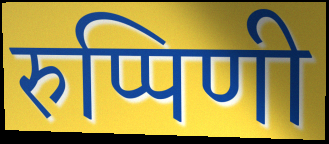
रुप्पिणी